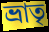
ভ্ৰাতৃ